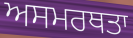
ਅਸਮਰਥਤਾ